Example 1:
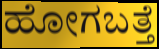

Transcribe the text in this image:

ಹೋಗಬತ್ತೆ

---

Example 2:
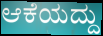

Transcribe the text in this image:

ಆಕೆಯದ್ದು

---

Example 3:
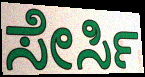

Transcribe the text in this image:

ಸೇರ್ಸಿ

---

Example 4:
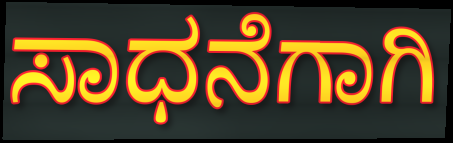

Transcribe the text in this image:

ಸಾಧನೆಗಾಗಿ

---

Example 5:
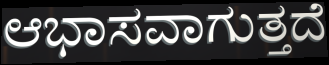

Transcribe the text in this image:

ಆಭಾಸವಾಗುತ್ತದೆ